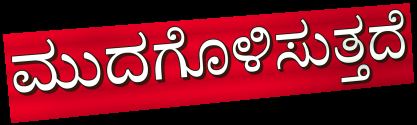
ಮುದಗೊಳಿಸುತ್ತದೆ